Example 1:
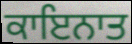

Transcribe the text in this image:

ਕਾਇਨਾਤ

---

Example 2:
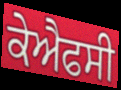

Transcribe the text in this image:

ਕੇਐਫਸੀ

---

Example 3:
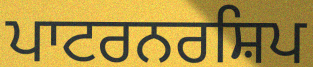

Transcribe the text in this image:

ਪਾਟਰਨਰਸ਼ਿਪ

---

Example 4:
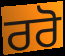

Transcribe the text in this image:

ਰਰੋ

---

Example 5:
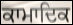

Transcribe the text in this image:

ਕਾਮਾਦਿਕ